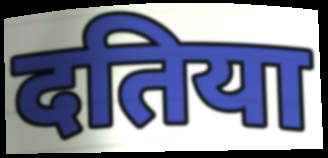
दतिया